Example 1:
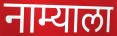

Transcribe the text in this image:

नाम्याला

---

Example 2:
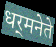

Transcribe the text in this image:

धर्मनेते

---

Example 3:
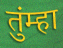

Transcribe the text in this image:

तुंम्हा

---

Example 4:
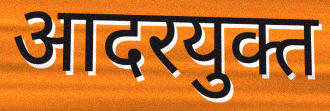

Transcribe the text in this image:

आदरयुक्त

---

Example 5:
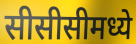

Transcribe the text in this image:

सीसीसीमध्ये